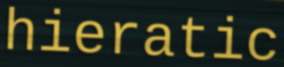
hieratic